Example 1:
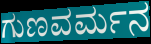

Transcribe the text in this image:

ಗುಣವರ್ಮನ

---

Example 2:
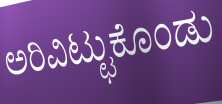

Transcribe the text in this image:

ಅರಿವಿಟ್ಟುಕೊಂಡು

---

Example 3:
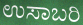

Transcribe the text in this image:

ಉಸಾಬರಿ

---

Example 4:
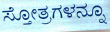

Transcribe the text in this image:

ಸ್ತೋತ್ರಗಳನ್ನೂ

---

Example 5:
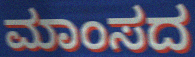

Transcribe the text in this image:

ಮಾಂಸದ